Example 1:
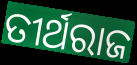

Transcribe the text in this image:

ତୀର୍ଥରାଜ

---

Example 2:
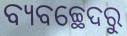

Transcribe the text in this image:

ବ୍ୟବଚ୍ଛେଦରୁ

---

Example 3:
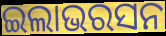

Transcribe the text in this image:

ଇଲାଭରସନ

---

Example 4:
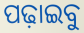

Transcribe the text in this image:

ପଢ଼ାଇବୁ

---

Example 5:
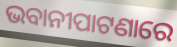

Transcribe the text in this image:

ଭବାନୀପାଟଣାରେ